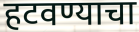
हटवण्याचा